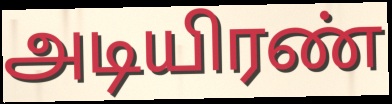
அடியிரண்